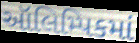
ઑલિમ્પિકમાં